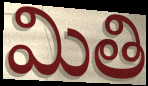
మితి